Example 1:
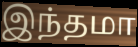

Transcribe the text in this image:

இந்தமா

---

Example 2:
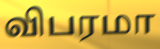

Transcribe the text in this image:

விபரமா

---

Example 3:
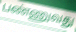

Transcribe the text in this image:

பண்ணுவது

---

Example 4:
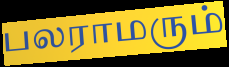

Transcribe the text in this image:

பலராமரும்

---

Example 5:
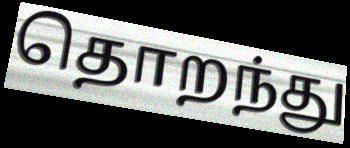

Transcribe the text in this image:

தொறந்து